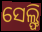
ସେଲ୍ଫି